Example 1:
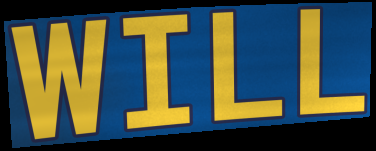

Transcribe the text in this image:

WILL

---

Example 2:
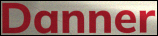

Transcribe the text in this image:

Danner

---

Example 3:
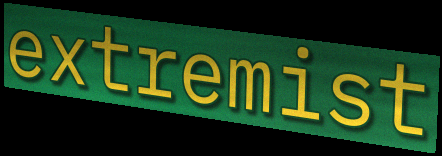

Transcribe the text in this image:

extremist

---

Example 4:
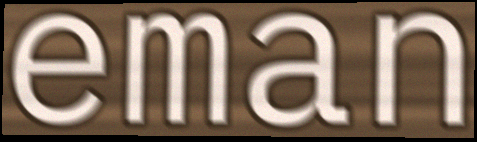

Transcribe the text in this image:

eman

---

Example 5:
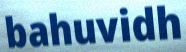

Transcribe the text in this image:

bahuvidh